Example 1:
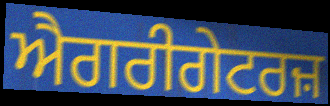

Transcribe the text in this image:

ਐਗਰੀਗੇਟਰਜ਼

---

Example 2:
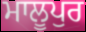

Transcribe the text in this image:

ਮਾਲੂਪੁਰ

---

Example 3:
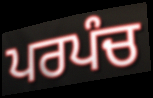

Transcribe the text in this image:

ਪਰਪੰਚ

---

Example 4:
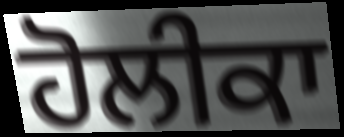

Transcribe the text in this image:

ਹੋਲੀਕਾ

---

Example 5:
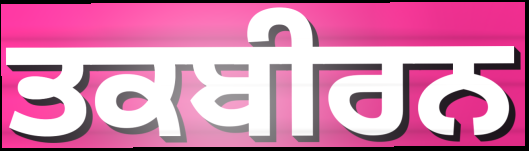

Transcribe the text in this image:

ਤਕਬੀਰਨ